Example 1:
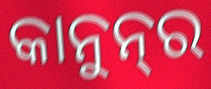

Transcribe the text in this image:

କାନୁନ୍‌ର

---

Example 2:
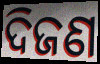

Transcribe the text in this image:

ଦିଜଣ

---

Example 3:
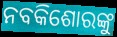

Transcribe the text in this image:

ନବକିଶୋରଙ୍କୁ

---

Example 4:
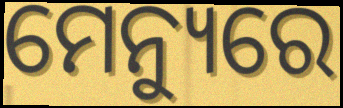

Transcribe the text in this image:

ମେନ୍ୟୁରେ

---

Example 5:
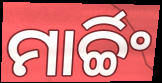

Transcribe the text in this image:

ମାର୍ଚ୍ଚିଂ